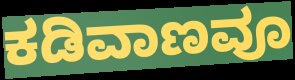
ಕಡಿವಾಣವೂ